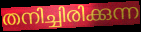
തനിച്ചിരിക്കുന്ന